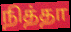
நித்தா